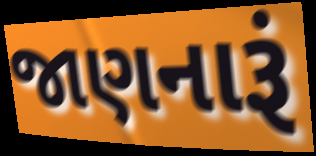
જાણનારૂં